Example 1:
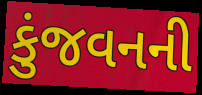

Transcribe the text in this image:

કુંજવનની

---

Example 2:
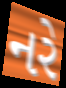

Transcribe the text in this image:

નરે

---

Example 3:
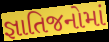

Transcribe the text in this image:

જ્ઞાતિજનોમાં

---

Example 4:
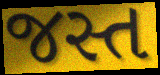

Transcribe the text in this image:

જસ્ત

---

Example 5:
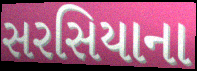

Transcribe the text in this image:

સરસિયાના